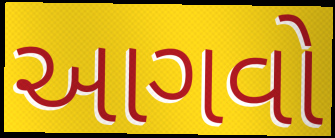
આગવો